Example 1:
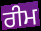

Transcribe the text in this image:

ਰੀਮ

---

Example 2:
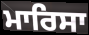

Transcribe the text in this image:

ਮਾਰਿਸਾ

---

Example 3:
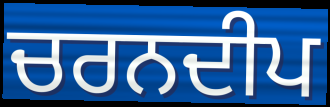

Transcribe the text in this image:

ਚਰਨਦੀਪ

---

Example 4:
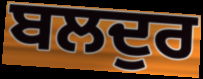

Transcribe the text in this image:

ਬਲਦੁਰ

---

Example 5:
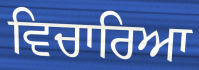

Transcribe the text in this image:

ਵਿਚਾਰਿਆ